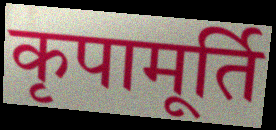
कृपामूर्ति